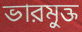
ভারমুক্ত